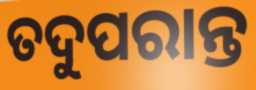
ତଦୁପରାନ୍ତ